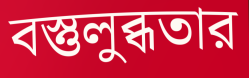
বস্তুলুব্ধতার